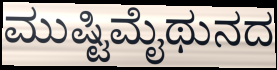
ಮುಷ್ಟಿಮೈಥುನದ